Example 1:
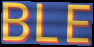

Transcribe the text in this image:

BLE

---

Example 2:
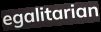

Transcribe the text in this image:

egalitarian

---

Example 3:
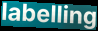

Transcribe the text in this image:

labelling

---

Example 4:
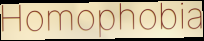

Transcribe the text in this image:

Homophobia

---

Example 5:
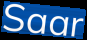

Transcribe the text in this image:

Saar